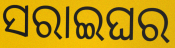
ସରାଇଘର